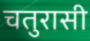
चतुरासी